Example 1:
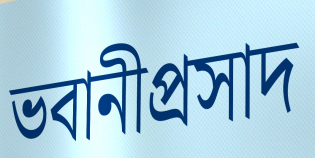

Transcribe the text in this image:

ভবানীপ্রসাদ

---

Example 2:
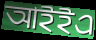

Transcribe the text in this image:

আইইএ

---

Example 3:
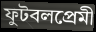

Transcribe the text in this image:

ফুটবলপ্রেমী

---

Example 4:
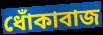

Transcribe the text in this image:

ধোঁকাবাজ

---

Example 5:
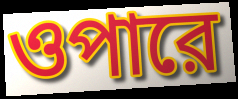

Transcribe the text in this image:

ওপারে